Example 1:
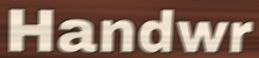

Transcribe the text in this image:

Handwr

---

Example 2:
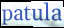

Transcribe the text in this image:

patula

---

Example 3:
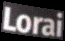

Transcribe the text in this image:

Lorai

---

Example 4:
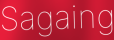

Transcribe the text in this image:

Sagaing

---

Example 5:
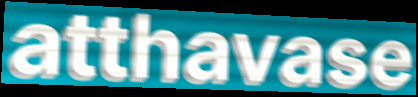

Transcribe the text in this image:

atthavase